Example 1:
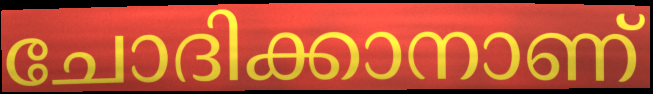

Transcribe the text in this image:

ചോദിക്കാനാണ്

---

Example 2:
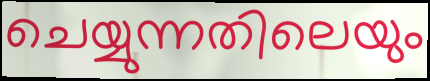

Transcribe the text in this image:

ചെയ്യുന്നതിലെയും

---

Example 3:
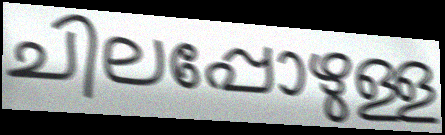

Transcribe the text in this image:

ചിലപ്പോഴുള്ള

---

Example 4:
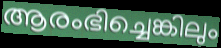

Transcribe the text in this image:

ആരംഭിച്ചെങ്കിലും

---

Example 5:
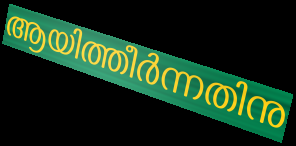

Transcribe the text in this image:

ആയിത്തീർന്നതിനു